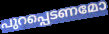
പുറപ്പെടണമോ